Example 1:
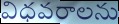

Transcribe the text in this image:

విధవరాలను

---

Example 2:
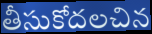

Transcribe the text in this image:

తీసుకోదలచిన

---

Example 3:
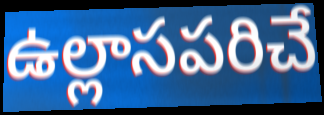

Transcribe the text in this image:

ఉల్లాసపరిచే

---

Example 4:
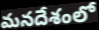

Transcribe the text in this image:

మనదేశంలో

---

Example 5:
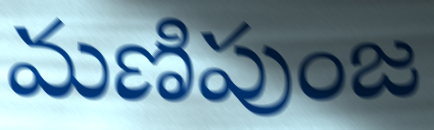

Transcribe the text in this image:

మణిపుంజ